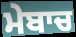
ਮੇਬਾਚ